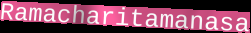
Ramacharitamanasa